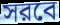
সরবে